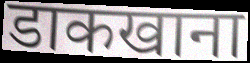
डाकखाना